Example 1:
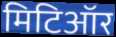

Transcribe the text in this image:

मिटिऑर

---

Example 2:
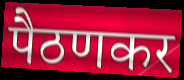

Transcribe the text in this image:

पैठणकर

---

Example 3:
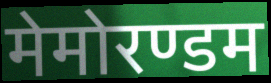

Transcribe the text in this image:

मेमोरण्डम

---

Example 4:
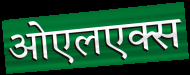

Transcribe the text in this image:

ओएलएक्स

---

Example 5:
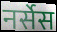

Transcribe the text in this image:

नर्सेस